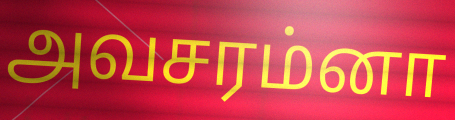
அவசரம்னா